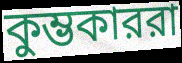
কুম্ভকাররা